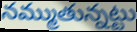
నమ్ముతున్నట్టు